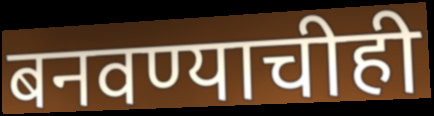
बनवण्याचीही